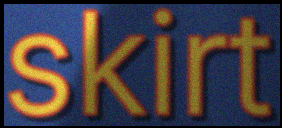
skirt